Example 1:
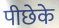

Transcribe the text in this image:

पीछेके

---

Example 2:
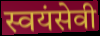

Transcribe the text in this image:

स्वयंसेवी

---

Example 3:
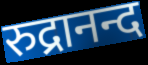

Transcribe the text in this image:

रुद्रानन्द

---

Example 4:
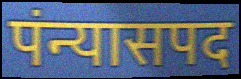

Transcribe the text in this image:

पंन्यासपद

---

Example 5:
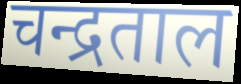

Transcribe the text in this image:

चन्द्रताल